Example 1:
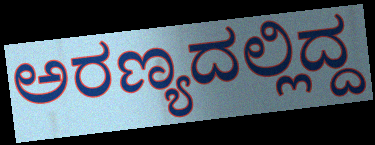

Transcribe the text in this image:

ಅರಣ್ಯದಲ್ಲಿದ್ದ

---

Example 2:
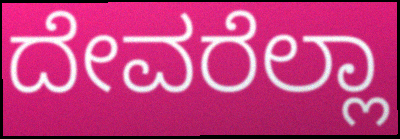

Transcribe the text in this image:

ದೇವರೆಲ್ಲಾ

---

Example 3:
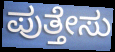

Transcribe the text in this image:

ಪುತ್ತೇಸು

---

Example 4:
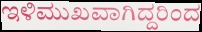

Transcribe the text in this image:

ಇಳಿಮುಖವಾಗಿದ್ದರಿಂದ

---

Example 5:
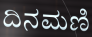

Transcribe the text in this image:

ದಿನಮಣಿ